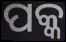
ପକ୍କ